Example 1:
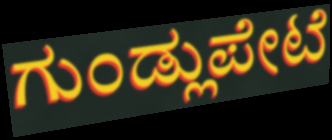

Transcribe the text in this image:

ಗುಂಡ್ಲುಪೇಟೆ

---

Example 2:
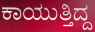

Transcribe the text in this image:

ಕಾಯುತ್ತಿದ್ದ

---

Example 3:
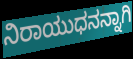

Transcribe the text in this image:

ನಿರಾಯುಧನನ್ನಾಗಿ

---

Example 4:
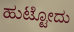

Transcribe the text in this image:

ಹುಟ್ಟೋದು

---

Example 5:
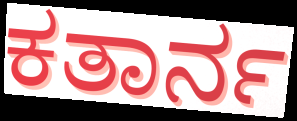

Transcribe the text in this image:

ಕತಾರ್ನ